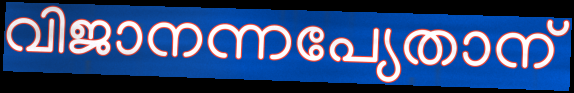
വിജാനന്നപ്യേതാന്